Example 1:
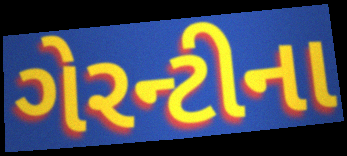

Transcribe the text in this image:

ગેરન્ટીના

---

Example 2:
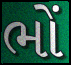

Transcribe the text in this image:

ભોં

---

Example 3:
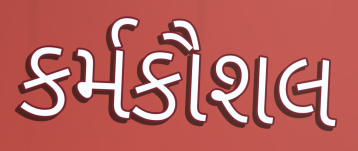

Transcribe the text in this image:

કર્મકૌશલ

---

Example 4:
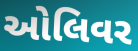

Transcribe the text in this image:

ઓલિવર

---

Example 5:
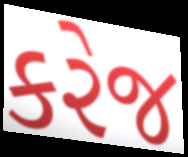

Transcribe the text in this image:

કરેજ